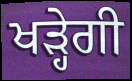
ਖੜ੍ਹੇਗੀ